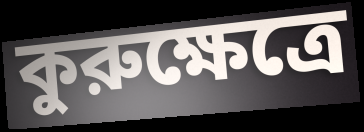
কুরুক্ষেত্রে